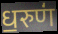
ध॒रुणं॑